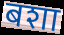
बशा